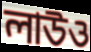
লাউও